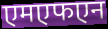
एमएफएन